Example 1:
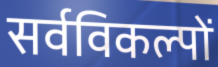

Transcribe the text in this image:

सर्वविकल्पों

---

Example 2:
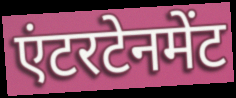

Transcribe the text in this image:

एंटरटेनमेंट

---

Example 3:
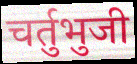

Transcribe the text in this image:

चर्तुभुजी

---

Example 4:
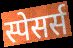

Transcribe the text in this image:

स्पेसर्स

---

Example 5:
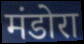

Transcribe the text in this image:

मंडोरा